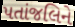
પતાંજલિને